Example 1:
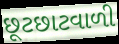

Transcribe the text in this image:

છૂટછાટવાળી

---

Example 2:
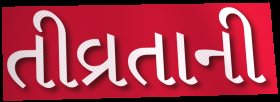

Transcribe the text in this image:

તીવ્રતાની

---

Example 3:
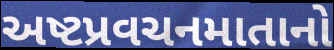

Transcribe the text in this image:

અષ્ટપ્રવચનમાતાનો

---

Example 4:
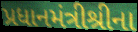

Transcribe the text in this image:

પ્રધાનમંત્રીશ્રીના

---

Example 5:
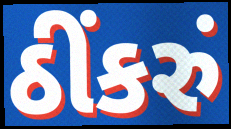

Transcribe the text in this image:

ઠીંકરું